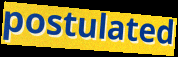
postulated